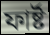
ফাৰ্ষ্ট